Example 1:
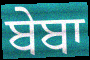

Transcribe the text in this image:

ਬੇਬਾ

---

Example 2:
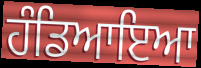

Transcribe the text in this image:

ਹੰਡਿਆਇਆ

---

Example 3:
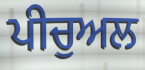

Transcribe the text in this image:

ਪੀਚੁਅਲ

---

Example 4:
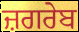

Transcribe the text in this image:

ਜ਼ਗਰੇਬ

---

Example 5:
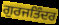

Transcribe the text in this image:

ਗੁਰਜਤਿੰਦਰ